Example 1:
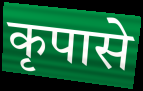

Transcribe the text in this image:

कृपासे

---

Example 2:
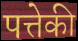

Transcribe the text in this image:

पत्तेकी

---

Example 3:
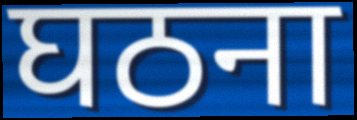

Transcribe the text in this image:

घठना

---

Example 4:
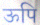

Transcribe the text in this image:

ऊपि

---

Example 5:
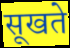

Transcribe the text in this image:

सूखते